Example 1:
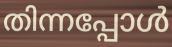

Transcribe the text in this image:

തിന്നപ്പോൾ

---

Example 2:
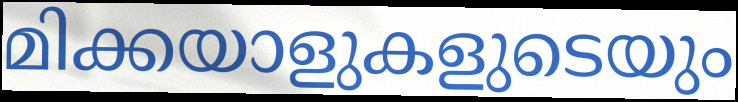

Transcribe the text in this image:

മിക്കയാളുകളുടെയും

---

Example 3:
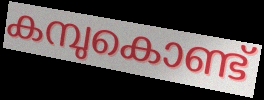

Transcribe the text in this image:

കമ്പുകൊണ്ട്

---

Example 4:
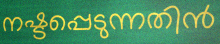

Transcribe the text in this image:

നഷ്ടപ്പെടുന്നതിൻ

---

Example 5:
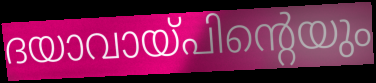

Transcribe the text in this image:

ദയാവായ്പിന്റെയും